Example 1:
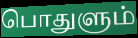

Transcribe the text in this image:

பொதுளும்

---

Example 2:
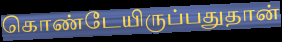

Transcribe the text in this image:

கொண்டேயிருப்பதுதான்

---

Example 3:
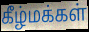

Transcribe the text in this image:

கீழ்மக்கள்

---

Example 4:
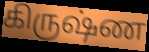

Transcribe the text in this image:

கிருஷ்ண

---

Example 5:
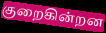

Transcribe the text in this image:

குறைகின்றன